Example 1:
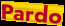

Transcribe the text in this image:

Pardo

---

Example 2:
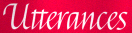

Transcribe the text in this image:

Utterances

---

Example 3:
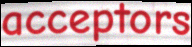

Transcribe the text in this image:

acceptors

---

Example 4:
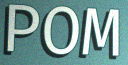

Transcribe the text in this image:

POM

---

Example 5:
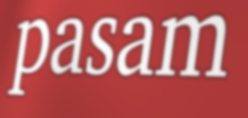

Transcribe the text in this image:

pasam